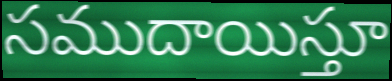
సముదాయిస్తూ